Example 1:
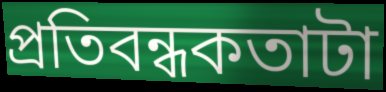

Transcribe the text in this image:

প্রতিবন্ধকতাটা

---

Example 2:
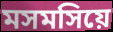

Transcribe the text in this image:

মসমসিয়ে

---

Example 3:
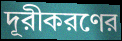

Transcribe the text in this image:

দূরীকরণের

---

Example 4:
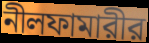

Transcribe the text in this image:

নীলফামারীর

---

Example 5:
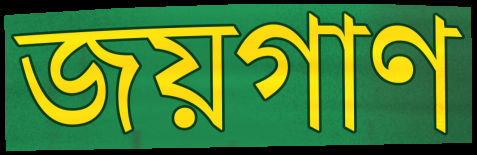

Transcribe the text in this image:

জয়গাণ